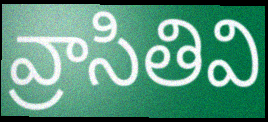
వ్రాసితివి